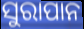
ସୁରାପାନ